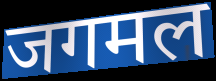
जगमल